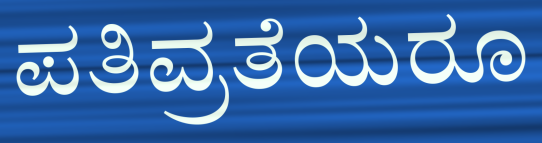
ಪತಿವ್ರತೆಯರೂ